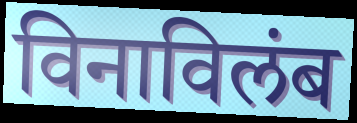
विनाविलंब